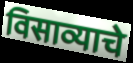
विसाव्याचे